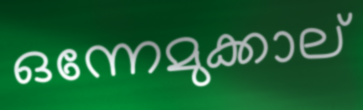
ഒന്നേമുക്കാല്